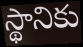
స్థానికు